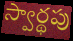
స్వార్థపు